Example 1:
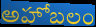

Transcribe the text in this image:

అహోబలం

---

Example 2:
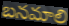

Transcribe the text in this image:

బనమాలి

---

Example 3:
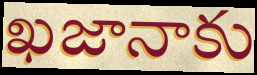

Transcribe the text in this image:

ఖజానాకు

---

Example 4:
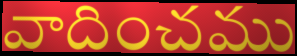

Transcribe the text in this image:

వాదించము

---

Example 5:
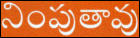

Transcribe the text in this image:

నింపుతావు